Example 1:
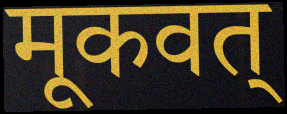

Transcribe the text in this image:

मूकवत्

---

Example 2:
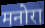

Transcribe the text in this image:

मनोरा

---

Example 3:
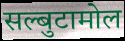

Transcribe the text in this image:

सल्बुटामोल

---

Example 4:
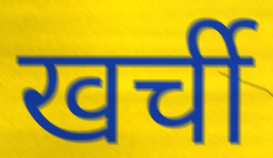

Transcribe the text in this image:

खर्ची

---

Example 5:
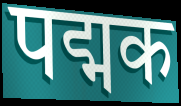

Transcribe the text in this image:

पद्मक